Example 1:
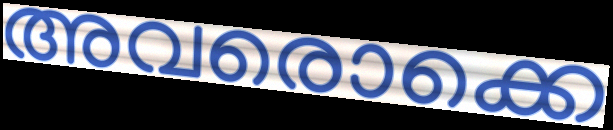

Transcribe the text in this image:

അവരൊക്കെ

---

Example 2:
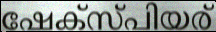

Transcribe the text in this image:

ഷേക്സ്പിയര്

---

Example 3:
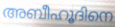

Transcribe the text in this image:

അബീഹൂദിനെ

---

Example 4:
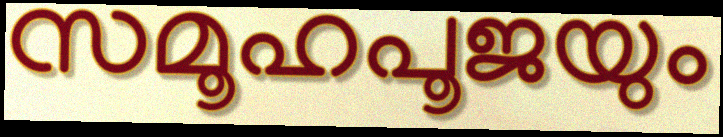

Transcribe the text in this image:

സമൂഹപൂജയും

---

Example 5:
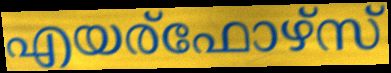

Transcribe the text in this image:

എയര്ഫോഴ്സ്